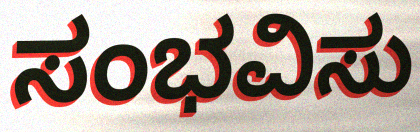
ಸಂಭವಿಸು